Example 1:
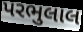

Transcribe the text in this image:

પરભુલાલ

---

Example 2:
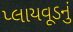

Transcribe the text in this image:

પ્લાયવૂડનું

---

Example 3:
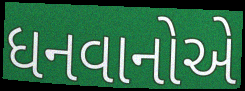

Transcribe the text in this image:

ધનવાનોએ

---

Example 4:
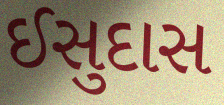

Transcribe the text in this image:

ઈસુદાસ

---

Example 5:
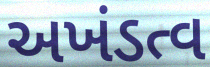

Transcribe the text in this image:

અખંડત્વ